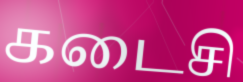
கடைசி